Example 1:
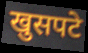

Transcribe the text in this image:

खुसपटे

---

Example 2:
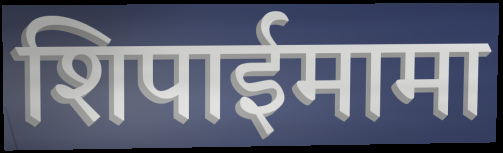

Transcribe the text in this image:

शिपाईमामा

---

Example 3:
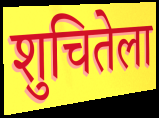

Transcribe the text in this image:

शुचितेला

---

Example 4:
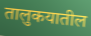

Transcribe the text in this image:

तालुकयातील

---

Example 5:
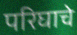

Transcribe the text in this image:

परिघाचे